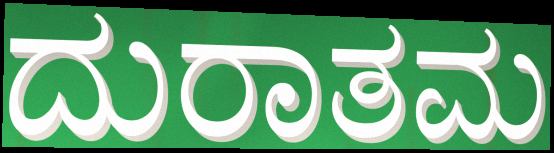
ದುರಾತಮ